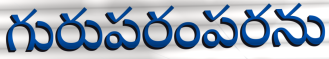
గురుపరంపరను